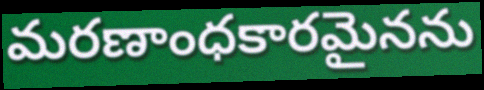
మరణాంధకారమైనను